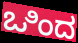
ಒಿಂದ